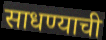
साधण्याची